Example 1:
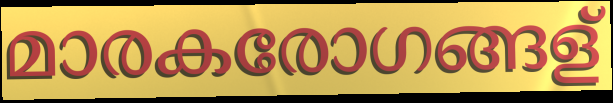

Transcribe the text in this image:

മാരകരോഗങ്ങള്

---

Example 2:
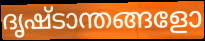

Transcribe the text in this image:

ദൃഷ്ടാന്തങ്ങളോ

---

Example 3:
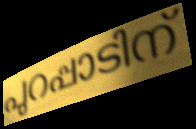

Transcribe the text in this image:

പുറപ്പാടിന്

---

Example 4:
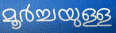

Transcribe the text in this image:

മൂർച്ചയുള്ള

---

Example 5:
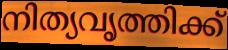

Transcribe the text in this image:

നിത്യവൃത്തിക്ക്